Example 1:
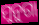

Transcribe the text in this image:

ମୁନୁଗା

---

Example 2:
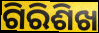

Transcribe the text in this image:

ଗିରିଶିଖ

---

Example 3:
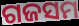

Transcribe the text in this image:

ଗଜସମ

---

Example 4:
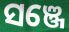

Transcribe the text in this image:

ସଞ୍ଜେ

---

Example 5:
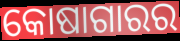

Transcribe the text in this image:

କୋଷାଗାରର